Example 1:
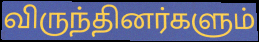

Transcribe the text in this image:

விருந்தினர்களும்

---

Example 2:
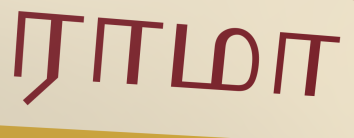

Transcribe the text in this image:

ராமா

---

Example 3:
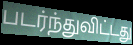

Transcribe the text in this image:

படர்ந்துவிட்டது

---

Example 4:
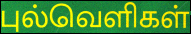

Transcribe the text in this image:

புல்வெளிகள்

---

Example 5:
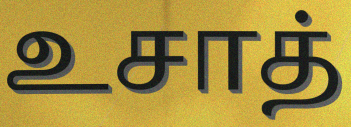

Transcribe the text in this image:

உசாத்